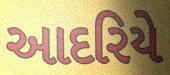
આદરિયે